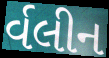
ર્વલીન